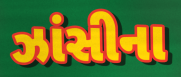
ઝાંસીના